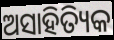
ଅସାହିତ୍ୟିକ